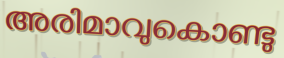
അരിമാവുകൊണ്ടു